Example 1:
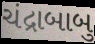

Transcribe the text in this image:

ચંદ્રાબાબુ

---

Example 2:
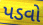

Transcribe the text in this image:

પડવો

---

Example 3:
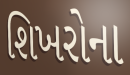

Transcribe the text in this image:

શિખરોના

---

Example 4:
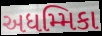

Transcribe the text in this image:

અધમ્મિકા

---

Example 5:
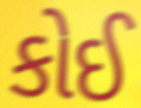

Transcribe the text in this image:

કોઈ